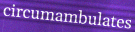
circumambulates